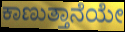
ಕಾಣುತ್ತಾನೆಯೇ